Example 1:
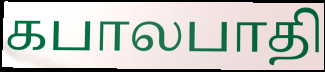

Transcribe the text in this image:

கபாலபாதி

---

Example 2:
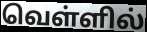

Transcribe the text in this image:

வெள்ளில்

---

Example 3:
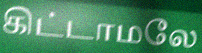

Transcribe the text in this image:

கிட்டாமலே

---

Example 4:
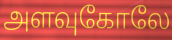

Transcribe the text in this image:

அளவுகோலே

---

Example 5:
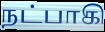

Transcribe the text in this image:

நட்பாகி